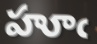
హూఁ